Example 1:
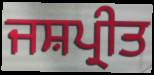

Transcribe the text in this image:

ਜਸ਼ਪ੍ਰੀਤ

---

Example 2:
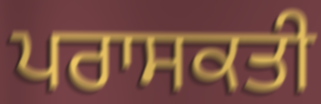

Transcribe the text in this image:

ਪਰਾਸਕਤੀ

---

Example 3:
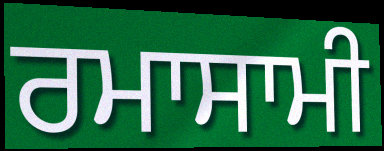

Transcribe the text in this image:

ਰਮਾਸਾਮੀ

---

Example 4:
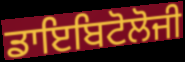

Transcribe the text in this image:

ਡਾਇਬਿਟੋਲੋਜੀ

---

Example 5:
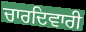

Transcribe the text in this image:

ਚਾਰਦਿਵਾਰੀ